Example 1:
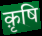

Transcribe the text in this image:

क़ृषि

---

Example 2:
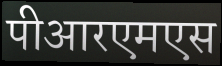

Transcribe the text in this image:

पीआरएमएस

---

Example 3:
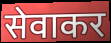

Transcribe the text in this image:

सेवाकर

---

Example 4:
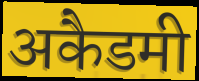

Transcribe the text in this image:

अकैडमी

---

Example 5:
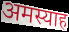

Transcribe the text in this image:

अमस्याह